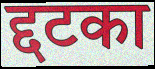
द्दटका